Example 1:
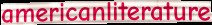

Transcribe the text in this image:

americanliterature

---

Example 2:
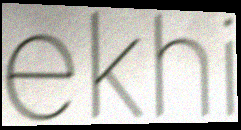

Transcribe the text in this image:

ekhi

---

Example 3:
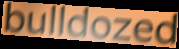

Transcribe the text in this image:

bulldozed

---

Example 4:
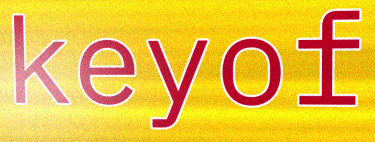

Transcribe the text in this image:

keyof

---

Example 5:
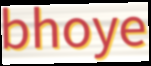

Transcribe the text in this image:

bhoye